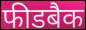
फीडबैक